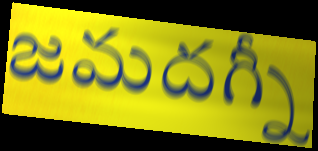
జమదగ్నీ